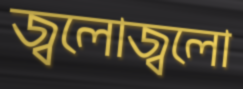
জ্বলোজ্বলো